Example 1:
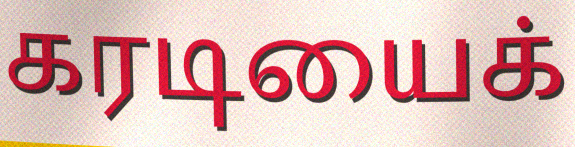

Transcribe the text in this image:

கரடியைக்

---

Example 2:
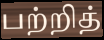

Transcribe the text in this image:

பற்றித்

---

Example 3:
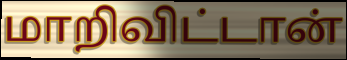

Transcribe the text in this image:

மாறிவிட்டான்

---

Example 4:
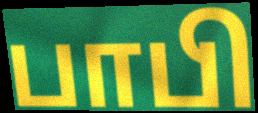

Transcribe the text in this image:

பாபி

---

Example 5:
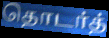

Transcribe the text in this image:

தொடர்த்